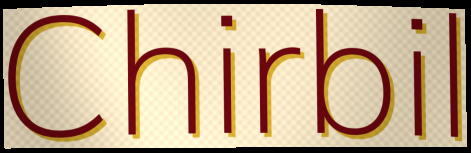
Chirbil